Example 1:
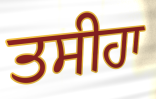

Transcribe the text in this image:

ਤਸੀਹਾ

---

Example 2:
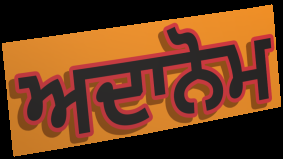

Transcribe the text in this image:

ਅਦਾਨੋਮ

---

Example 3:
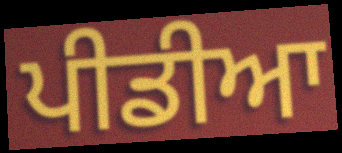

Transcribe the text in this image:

ਪੀਡੀਆ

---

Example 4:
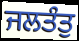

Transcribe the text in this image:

ਜਲਤੰਤੁ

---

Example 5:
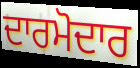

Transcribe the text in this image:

ਦਾਰਮੋਦਾਰ